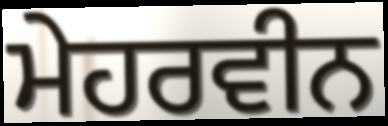
ਮੇਹਰਵੀਨ